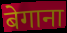
बेगाना